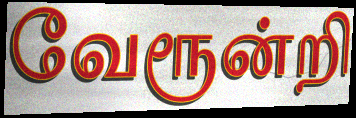
வேரூன்றி